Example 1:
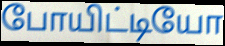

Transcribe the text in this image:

போயிட்டியோ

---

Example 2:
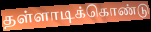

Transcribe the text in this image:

தள்ளாடிக்கொண்டு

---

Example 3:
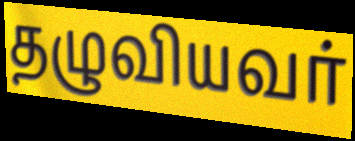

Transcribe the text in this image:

தழுவியவர்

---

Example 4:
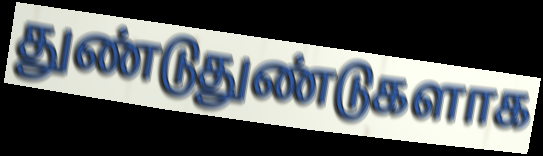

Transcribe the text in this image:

துண்டுதுண்டுகளாக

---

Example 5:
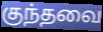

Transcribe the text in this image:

குந்தவை